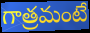
గాత్రమంటే